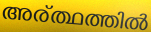
അര്ത്ഥത്തിൽ